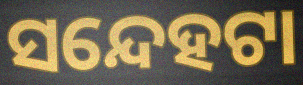
ସନ୍ଦେହଟା